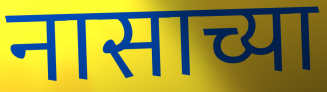
नासाच्या